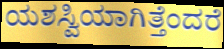
ಯಶಸ್ವಿಯಾಗಿತ್ತೆಂದರೆ